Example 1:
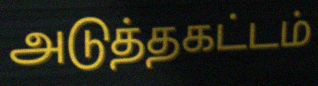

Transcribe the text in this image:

அடுத்தகட்டம்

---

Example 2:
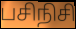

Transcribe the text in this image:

பசிநிசி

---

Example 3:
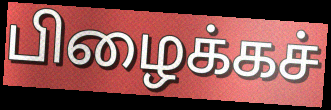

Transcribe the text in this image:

பிழைக்கச்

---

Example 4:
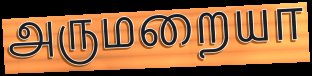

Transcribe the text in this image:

அருமறையா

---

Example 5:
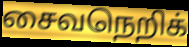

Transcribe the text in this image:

சைவநெறிக்